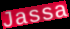
Jassa